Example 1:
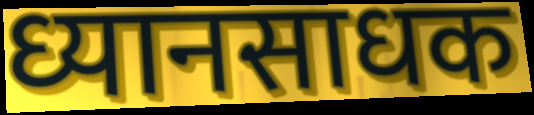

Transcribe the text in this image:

ध्यानसाधक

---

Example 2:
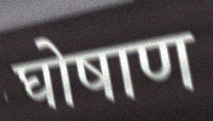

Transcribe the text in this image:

घोषाण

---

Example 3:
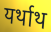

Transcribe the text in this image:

यर्थाथ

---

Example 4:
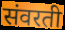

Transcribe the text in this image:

संवरती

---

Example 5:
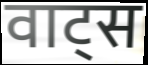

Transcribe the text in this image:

वाट्स